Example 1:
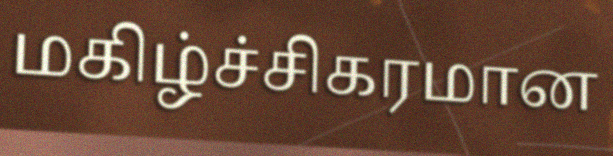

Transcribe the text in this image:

மகிழ்ச்சிகரமான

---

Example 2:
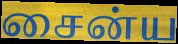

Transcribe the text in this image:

சைன்ய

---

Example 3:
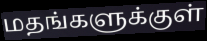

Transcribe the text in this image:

மதங்களுக்குள்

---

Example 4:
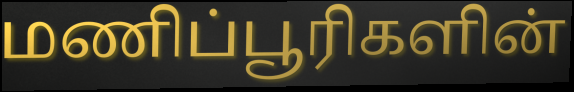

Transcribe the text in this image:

மணிப்பூரிகளின்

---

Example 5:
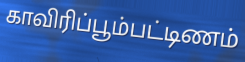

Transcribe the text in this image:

காவிரிப்பூம்பட்டிணம்